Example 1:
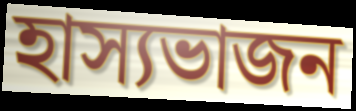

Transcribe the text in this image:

হাস্যভাজন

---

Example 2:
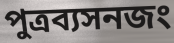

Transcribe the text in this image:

পুত্রব্যসনজং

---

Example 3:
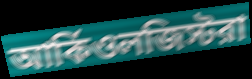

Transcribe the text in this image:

আর্কিওলজিস্টরা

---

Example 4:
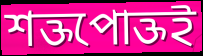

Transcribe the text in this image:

শক্তপোক্তই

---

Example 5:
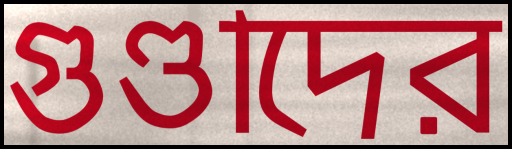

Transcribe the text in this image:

গুণ্ডাদের